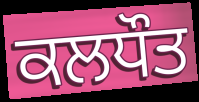
ਕਲਧੌਤ